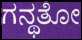
ಗನ್ಥತೋ